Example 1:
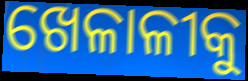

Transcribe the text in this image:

ଖେଳାଳୀକୁ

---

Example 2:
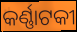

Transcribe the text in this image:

କର୍ଣ୍ଣାଟକୀ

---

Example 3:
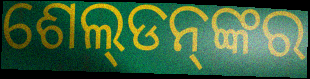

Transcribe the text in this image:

ଶେଲ୍‌ଡନ୍‌ଙ୍କର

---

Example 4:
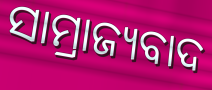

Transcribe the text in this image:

ସାମ୍ରାଜ୍ୟବାଦ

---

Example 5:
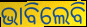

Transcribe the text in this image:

ଭାବିଲେବି